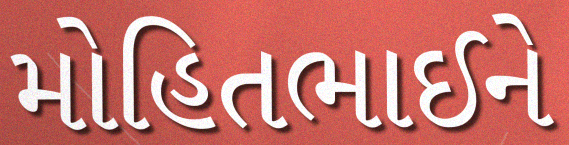
મોહિતભાઈને